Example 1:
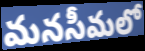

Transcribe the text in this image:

మనసీమలో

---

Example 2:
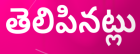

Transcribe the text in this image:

తెలిపినట్లు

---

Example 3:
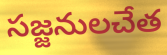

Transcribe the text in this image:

సజ్జనులచేత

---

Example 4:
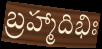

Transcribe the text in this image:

బ్రహ్మాదిభిః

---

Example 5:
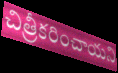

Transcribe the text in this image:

చిత్రీకరించాయని